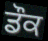
ਡੌਕ